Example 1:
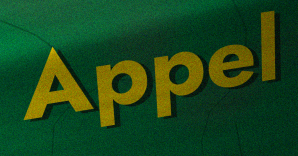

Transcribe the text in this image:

Appel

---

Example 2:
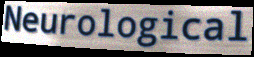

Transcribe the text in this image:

Neurological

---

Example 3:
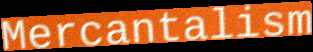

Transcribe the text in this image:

Mercantalism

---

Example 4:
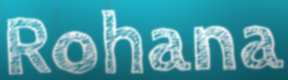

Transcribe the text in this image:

Rohana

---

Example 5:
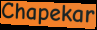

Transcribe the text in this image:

Chapekar